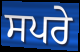
ਸਪਰੇ